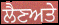
ਲੈਣਅਤੇ